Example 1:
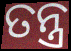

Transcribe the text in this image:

ତନ୍ତ୍ର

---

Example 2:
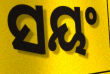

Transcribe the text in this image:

ସୟଂ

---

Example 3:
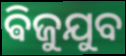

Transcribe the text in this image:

ଵିଜୁଯୁବ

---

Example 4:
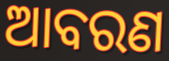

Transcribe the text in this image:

ଆବରଣ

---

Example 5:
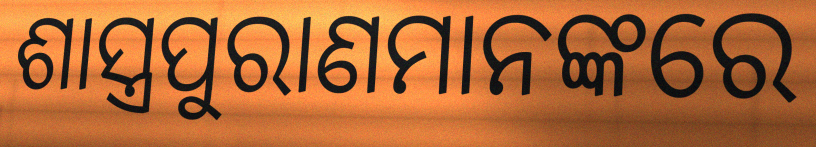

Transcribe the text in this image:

ଶାସ୍ତ୍ରପୁରାଣମାନଙ୍କରେ